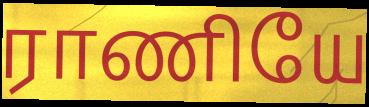
ராணியே